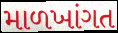
માળખાંગત